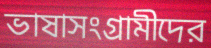
ভাষাসংগ্রামীদের